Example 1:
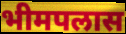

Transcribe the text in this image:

भीमपलास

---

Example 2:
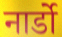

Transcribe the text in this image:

नार्डो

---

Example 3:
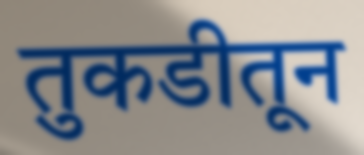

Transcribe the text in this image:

तुकडीतून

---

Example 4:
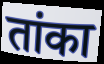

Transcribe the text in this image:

तांका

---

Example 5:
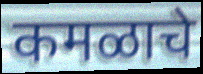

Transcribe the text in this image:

कमळाचे